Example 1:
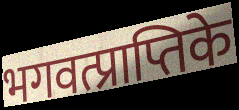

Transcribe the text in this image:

भगवत्प्राप्तिके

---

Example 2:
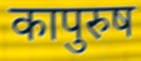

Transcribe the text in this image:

कापुरुष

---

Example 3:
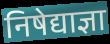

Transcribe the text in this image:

निषेद्याज्ञा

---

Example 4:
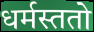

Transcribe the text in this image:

धर्मस्ततो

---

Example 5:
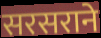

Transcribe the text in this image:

सरसराने